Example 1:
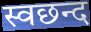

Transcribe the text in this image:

स्वछन्द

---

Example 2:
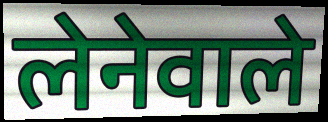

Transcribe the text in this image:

लेनेवाले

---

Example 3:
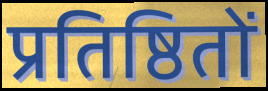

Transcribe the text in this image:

प्रतिष्ठितों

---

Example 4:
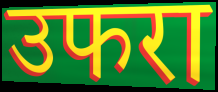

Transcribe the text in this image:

उफरा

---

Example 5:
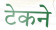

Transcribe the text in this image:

टेकने